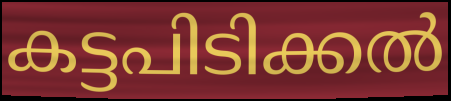
കട്ടപിടിക്കൽ